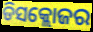
ଡିସକ୍ଲୋଜର